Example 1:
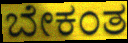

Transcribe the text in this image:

ಬೇಕಂತ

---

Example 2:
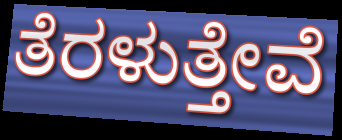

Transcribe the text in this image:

ತೆರಳುತ್ತೇವೆ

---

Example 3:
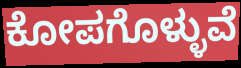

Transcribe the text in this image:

ಕೋಪಗೊಳ್ಳುವೆ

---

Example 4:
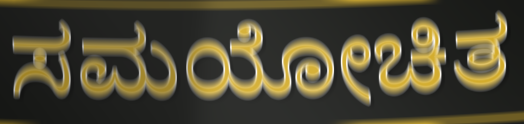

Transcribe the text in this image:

ಸಮಯೋಚಿತ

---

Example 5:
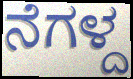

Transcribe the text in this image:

ನೆಗಳ್ದ